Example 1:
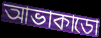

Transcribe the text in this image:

আভাকাডো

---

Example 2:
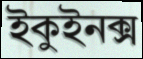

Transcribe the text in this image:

ইকুইনক্স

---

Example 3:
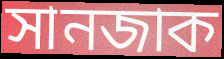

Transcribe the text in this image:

সানজাক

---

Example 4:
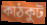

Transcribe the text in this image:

কাঠকুট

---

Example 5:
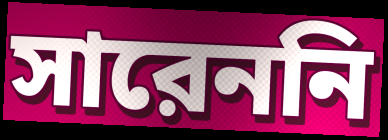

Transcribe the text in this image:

সারেননি